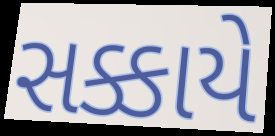
સક્કાયે